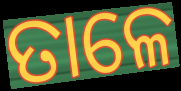
ତାଳେ